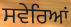
ਸਵੇਰਿਆਂ